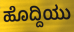
ಹೊದ್ದಿಯು